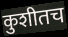
कुशीतच